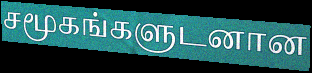
சமூகங்களுடனான